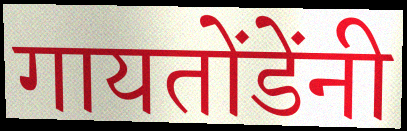
गायतोंडेंनी